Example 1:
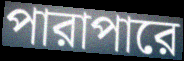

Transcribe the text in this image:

পারাপারে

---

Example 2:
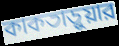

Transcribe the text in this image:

কাকতাড়ুয়ার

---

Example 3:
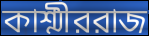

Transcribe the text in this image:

কাশ্মীররাজ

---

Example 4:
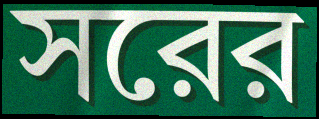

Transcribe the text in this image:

সরের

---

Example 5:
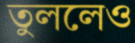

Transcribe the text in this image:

তুললেও